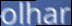
olhar